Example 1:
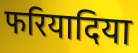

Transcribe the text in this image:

फरियादिया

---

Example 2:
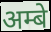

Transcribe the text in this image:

अम्बे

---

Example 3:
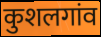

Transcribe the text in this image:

कुशलगांव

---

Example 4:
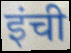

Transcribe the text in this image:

इंची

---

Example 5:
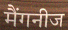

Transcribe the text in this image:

मैंगनीज